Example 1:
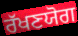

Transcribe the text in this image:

ਰੱਖਣਯੋਗ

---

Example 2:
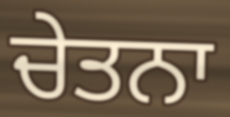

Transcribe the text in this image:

ਚੇਤਨਾ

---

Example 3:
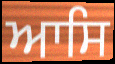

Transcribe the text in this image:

ਆਸਿ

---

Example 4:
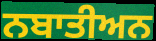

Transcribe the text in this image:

ਨਬਾਤੀਅਨ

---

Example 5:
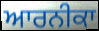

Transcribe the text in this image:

ਆਰਨੀਕਾ